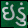
ઇંડું